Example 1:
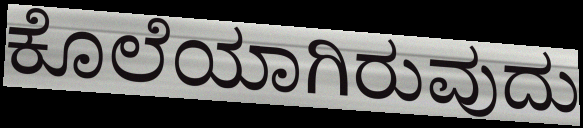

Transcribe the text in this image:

ಕೊಲೆಯಾಗಿರುವುದು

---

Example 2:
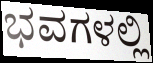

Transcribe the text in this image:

ಭವಗಳಲ್ಲಿ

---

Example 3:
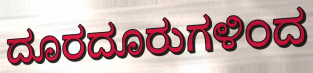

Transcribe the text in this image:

ದೂರದೂರುಗಳಿಂದ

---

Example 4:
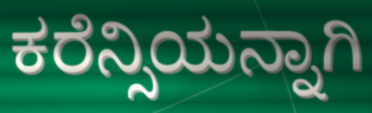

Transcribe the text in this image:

ಕರೆನ್ಸಿಯನ್ನಾಗಿ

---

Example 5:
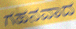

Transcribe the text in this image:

ಗಹನವಾದ